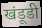
खंडूडी